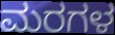
ಮರಗಳ